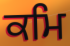
ਕਮਿ